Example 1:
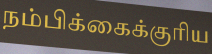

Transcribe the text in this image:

நம்பிக்கைக்குரிய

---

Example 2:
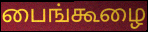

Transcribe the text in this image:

பைங்கூழை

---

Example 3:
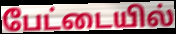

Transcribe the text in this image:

பேட்டையில்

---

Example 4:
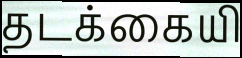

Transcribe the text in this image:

தடக்கையி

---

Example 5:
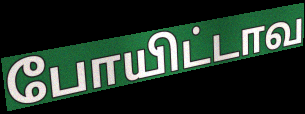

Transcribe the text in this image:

போயிட்டாவ